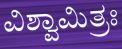
ವಿಶ್ವಾಮಿತ್ರಃ